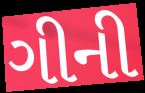
ગીની